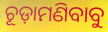
ଚୂଡ଼ାମଣିବାବୁ